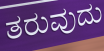
ತರುವುದು